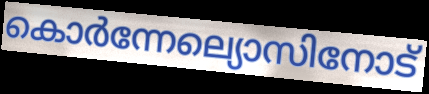
കൊർന്നേല്യൊസിനോട്